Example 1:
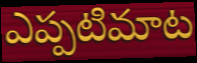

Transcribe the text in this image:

ఎప్పటిమాట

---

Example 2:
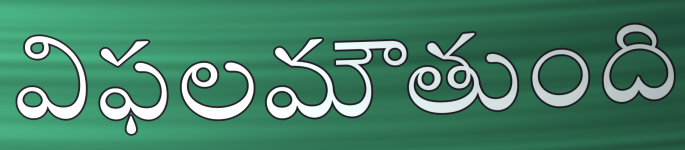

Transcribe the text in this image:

విఫలమౌతుంది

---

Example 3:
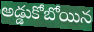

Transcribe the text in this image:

అడ్డుకోబోయిన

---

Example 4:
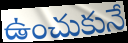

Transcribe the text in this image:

ఉంచుకునే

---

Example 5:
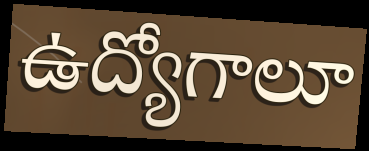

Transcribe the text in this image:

ఉద్యోగాలూ